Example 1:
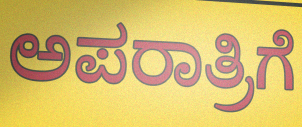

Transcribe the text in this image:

ಅಪರಾತ್ರಿಗೆ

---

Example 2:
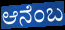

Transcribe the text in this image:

ಆನೆಂಬ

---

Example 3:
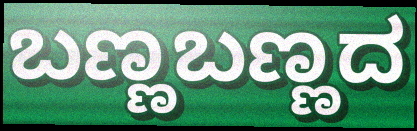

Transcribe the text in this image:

ಬಣ್ಣಬಣ್ಣದ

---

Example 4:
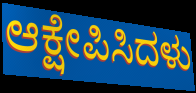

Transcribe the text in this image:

ಆಕ್ಷೇಪಿಸಿದಳು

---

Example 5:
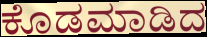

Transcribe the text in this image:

ಕೊಡಮಾಡಿದ